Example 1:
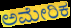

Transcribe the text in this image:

ಅಮೇರಿಕ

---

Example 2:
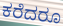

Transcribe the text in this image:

ಕರೆದರೂ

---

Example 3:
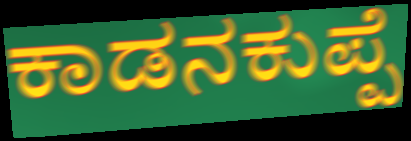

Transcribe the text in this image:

ಕಾಡನಕುಪ್ಪೆ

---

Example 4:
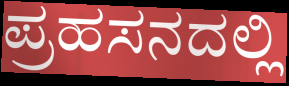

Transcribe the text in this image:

ಪ್ರಹಸನದಲ್ಲಿ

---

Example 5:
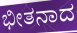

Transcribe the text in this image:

ಭೀತನಾದ